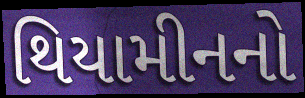
થિયામીનનો